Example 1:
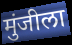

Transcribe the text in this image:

मुंजीला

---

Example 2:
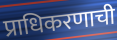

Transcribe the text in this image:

प्राधिकरणाची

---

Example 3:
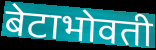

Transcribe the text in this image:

बेटाभोवती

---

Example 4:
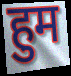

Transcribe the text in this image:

हुम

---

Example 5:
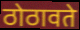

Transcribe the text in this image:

ठोठावते